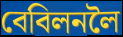
বেবিলনলৈ